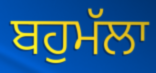
ਬਹੁਮੱਲਾ